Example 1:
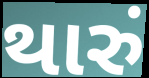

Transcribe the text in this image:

થારું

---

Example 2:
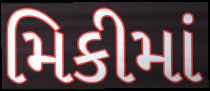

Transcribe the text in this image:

મિકીમાં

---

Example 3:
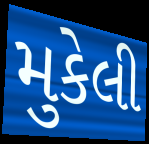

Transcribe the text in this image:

મુકેલી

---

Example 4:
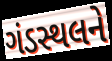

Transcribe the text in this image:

ગંડસ્થલને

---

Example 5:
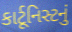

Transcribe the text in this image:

કાર્ટૂનિસ્ટનું